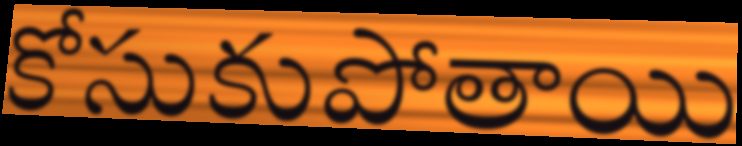
కోసుకుపోతాయి